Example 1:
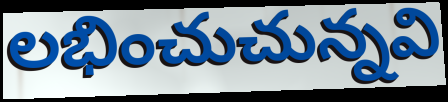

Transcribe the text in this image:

లభించుచున్నవి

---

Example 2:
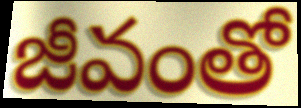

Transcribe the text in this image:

జీవంతో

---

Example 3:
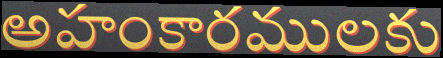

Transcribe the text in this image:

అహంకారములకు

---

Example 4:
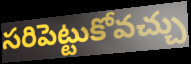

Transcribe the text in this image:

సరిపెట్టుకోవచ్చు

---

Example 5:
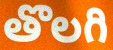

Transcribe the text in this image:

తొలగి